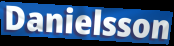
Danielsson